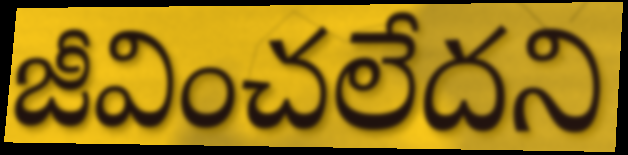
జీవించలేదని